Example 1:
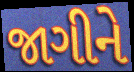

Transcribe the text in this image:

જાગીને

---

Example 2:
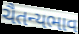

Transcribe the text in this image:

ચૈતન્યભાવ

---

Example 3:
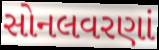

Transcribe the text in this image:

સોનલવરણાં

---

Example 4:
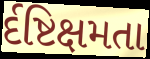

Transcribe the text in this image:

ર્દષ્ટિક્ષમતા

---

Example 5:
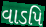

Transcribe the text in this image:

વાઽપિ